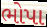
ભોપા